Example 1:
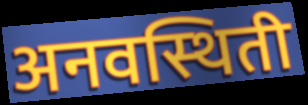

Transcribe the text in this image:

अनवस्थिती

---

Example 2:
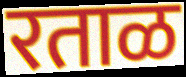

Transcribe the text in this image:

रताळ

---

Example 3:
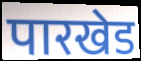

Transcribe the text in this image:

पारखेड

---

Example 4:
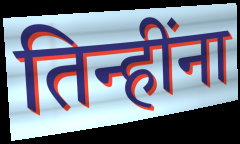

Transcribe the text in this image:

तिन्हींना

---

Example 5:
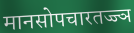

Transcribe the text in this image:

मानसोपचारतज्ज्ञ